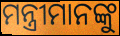
ମନ୍ତ୍ରୀମାନଙ୍କୁ